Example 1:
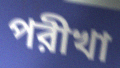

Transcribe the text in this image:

পরীখা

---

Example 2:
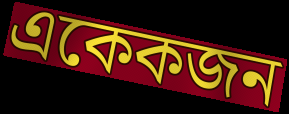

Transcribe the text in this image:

একেকজন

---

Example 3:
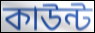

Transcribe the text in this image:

কাউন্ট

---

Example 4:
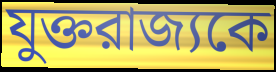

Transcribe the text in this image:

যুক্তরাজ্যকে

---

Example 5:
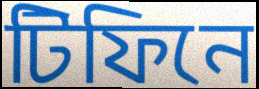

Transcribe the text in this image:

টিফিনে